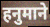
हनुमाने